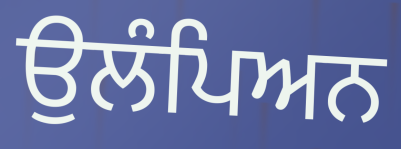
ਉਲੰਪਿਅਨ